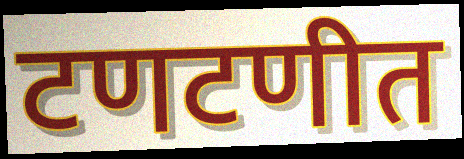
टणटणीत